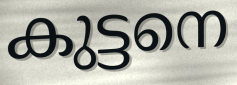
കുട്ടനെ